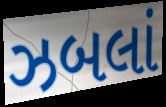
ઝબલાં